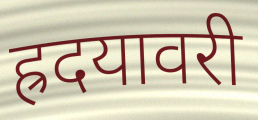
ह्रदयावरी